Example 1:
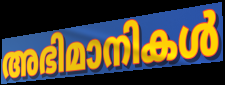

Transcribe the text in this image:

അഭിമാനികൾ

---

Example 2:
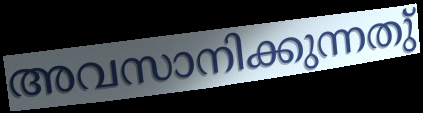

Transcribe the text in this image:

അവസാനിക്കുന്നതു്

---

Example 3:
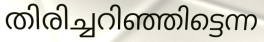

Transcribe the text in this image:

തിരിച്ചറിഞ്ഞിട്ടെന്ന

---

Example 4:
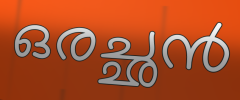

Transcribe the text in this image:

ഒരച്ഛൻ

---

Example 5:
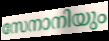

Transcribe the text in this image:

സേനാനിയും